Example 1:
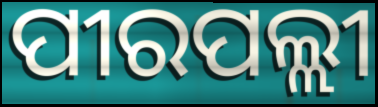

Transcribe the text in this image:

ପୀରପଲ୍ଲୀ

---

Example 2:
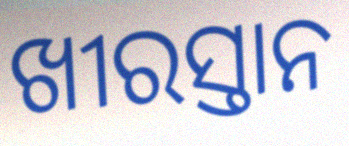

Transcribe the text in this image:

ଖୀରସ୍ତାନ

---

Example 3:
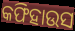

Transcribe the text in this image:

କଫିହାଉସ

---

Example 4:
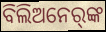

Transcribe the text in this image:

ବିଲିଅନେର୍‌ଙ୍କ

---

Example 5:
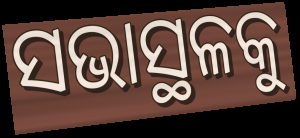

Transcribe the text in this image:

ସଭାସ୍ଥଳକୁ